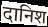
दानिश